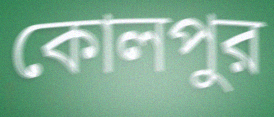
কোলপুর